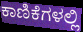
ಕಾಣಿಕೆಗಳಲ್ಲಿ